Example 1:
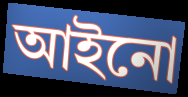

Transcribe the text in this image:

আইনো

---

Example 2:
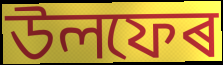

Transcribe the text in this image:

উলফেৰ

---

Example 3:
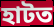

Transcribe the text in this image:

হাটত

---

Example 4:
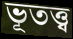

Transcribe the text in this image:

ভূতত্ত্ব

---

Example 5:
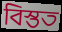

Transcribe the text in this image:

বিস্তত